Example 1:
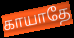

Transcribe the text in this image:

காயாதே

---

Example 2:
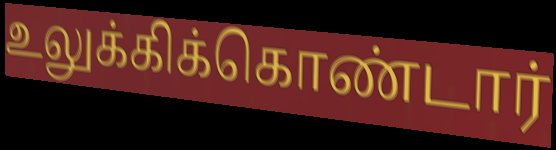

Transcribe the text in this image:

உலுக்கிக்கொண்டார்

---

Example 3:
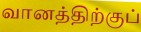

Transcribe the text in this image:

வானத்திற்குப்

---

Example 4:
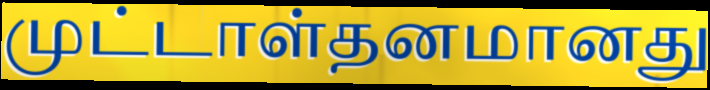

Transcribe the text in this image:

முட்டாள்தனமானது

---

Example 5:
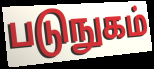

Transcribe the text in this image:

படுநுகம்